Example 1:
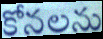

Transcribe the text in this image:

కోనలను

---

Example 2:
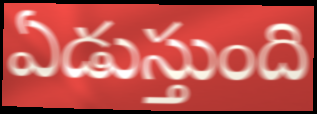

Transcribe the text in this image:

ఏడుస్తుంది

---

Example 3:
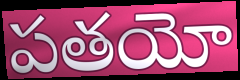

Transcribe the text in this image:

పతయో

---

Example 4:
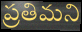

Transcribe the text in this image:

ప్రతిమని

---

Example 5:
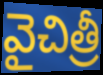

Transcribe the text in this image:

వైచిత్రీ